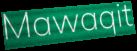
Mawaqit